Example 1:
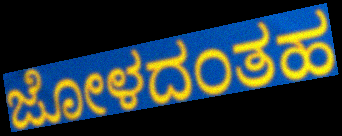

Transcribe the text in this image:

ಜೋಳದಂತಹ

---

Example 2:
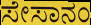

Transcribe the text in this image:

ಸೇಸಾನಂ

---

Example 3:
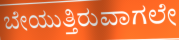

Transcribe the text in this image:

ಬೇಯುತ್ತಿರುವಾಗಲೇ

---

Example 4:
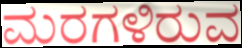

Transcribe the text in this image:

ಮರಗಳಿರುವ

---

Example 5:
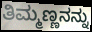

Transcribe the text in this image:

ತಿಮ್ಮಣ್ಣನನ್ನು